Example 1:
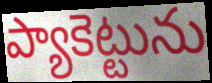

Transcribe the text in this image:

ప్యాకెట్టును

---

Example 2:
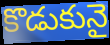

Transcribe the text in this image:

కొడుకునై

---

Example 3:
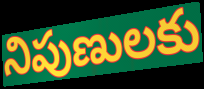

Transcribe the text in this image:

నిపుణులకు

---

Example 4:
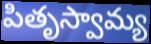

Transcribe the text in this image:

పితృస్వామ్య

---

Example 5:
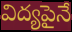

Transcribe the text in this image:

విద్యపైనే